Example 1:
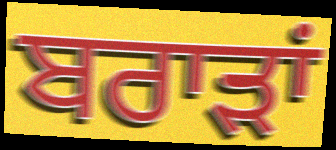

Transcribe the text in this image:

ਬਰਾੜਾਂ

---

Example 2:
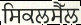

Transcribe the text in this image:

ਸਿਕਲਸੈੱਲ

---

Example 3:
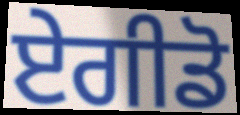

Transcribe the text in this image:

ਏਗੀਡੋ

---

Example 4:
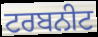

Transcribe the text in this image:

ਟਰਬਨੀਟ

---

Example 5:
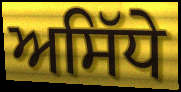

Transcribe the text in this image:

ਅਸਿੱਧੇ